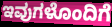
ಇವುಗಳೊಂದಿಗೆ